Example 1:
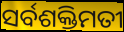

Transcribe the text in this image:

ସର୍ବଶକ୍ତିମତୀ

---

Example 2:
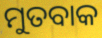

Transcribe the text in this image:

ମୁତବାକ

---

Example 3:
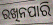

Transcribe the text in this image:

ରଖିନପାରି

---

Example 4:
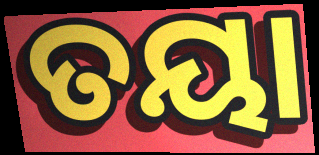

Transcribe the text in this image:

ତୟା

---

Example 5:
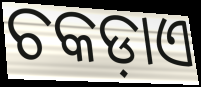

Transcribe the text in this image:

ଚକଡ଼ାଏ